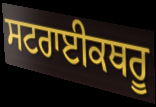
ਸਟਰਾਈਕਥਰੂ